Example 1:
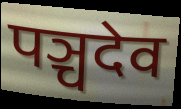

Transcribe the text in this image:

पञ्चदेव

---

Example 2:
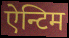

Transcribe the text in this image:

ऐन्टिम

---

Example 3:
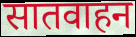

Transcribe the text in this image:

सातवाहन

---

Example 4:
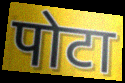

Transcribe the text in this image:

पोटा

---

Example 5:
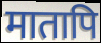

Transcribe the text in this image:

मातापि